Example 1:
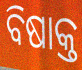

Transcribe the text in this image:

ବିଷାକ୍ତ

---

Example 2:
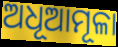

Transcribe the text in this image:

ଅଧୂଆମୂଳା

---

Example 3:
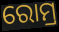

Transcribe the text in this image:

ରୋମ୍ର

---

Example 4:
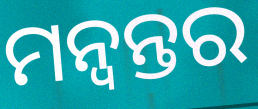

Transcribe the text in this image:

ମନ୍ୱନ୍ତର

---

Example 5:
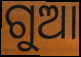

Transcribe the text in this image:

ଗୁଆ